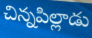
చిన్నపిల్లాడు